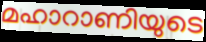
മഹാറാണിയുടെ